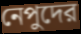
নেপুদের